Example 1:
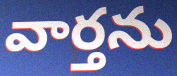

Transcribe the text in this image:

వార్తను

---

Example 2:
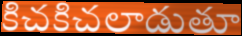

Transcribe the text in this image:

కిచకిచలాడుతూ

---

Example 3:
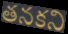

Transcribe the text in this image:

తనకని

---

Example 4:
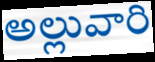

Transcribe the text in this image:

అల్లువారి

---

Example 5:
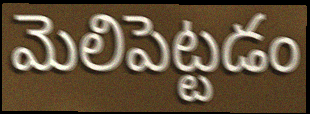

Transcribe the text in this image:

మెలిపెట్టడం